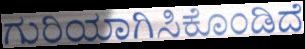
ಗುರಿಯಾಗಿಸಿಕೊಂಡಿದೆ